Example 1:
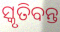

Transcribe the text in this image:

ସ୍କୃତିବନ୍ତ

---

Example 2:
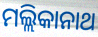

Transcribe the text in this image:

ମଲ୍ଲିକାନାଥ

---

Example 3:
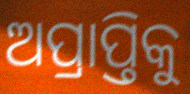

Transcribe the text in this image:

ଅପ୍ରାପ୍ତିକୁ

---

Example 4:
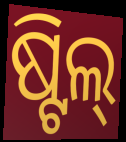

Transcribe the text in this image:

ଷ୍ଟିଲ୍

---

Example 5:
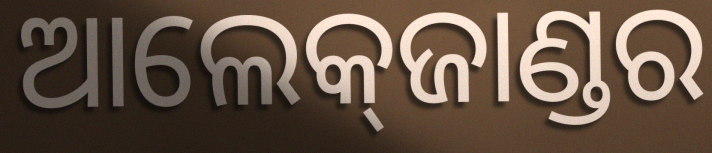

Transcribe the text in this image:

ଆଲେକ୍‌ଜାଣ୍ଡର